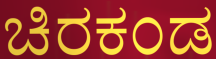
ಚಿರಕಂಡ